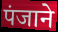
पंजाने